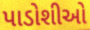
પાડોશીઓ